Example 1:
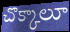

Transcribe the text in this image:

చొక్కాలూ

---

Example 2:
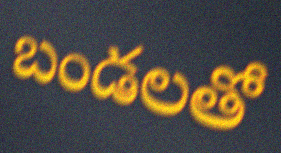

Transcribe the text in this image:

బండలతో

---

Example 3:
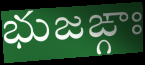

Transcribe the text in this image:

భుజఙ్గాః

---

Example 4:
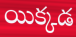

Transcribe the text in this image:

యిక్కడ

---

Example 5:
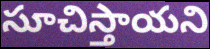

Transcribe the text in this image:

సూచిస్తాయని